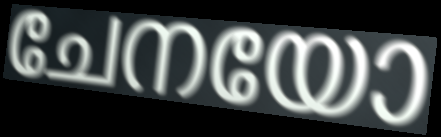
ചേനയോ